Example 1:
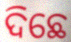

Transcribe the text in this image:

ଦିଛେ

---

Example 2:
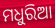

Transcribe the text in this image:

ମଧୁରିଆ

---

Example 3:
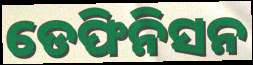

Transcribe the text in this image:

ଡେଫିନିସନ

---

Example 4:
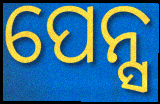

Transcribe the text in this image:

ପେନ୍ସ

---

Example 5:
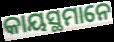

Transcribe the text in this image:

କାୟସ୍ଥମାନେ